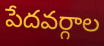
పేదవర్గాల